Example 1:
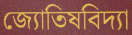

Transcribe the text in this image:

জ্যোতিষবিদ্যা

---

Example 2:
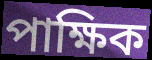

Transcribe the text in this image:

পাক্ষিক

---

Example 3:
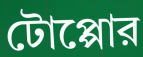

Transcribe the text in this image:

টোপ্পোর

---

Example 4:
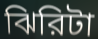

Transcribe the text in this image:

ঝিরিটা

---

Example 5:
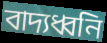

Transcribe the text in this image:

বাদ্যধ্বনি